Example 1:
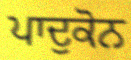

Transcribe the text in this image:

ਪਾਦੁਕੋਨ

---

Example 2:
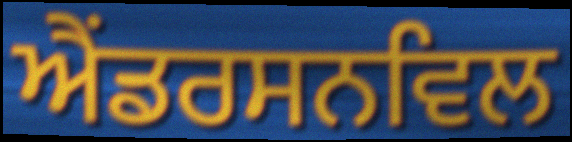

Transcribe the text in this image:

ਐਂਡਰਸਨਵਿਲ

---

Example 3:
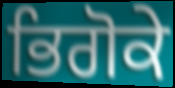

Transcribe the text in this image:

ਭਿਗੋਕੇ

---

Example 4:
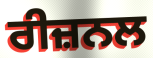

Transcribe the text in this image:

ਰੀਜ਼ਨਲ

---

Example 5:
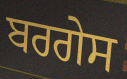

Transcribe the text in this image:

ਬਰਗੇਸ